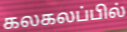
கலகலப்பில்